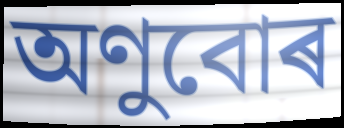
অণুবোৰ